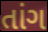
તાંગ